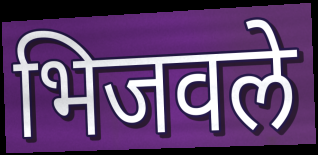
भिजवले